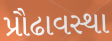
પ્રૌઢાવસ્થા